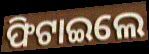
ଫିଟାଇଲେ